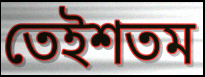
তেইশতম